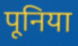
पूनिया